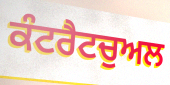
ਕੰਟਰੈਟਚੁਅਲ